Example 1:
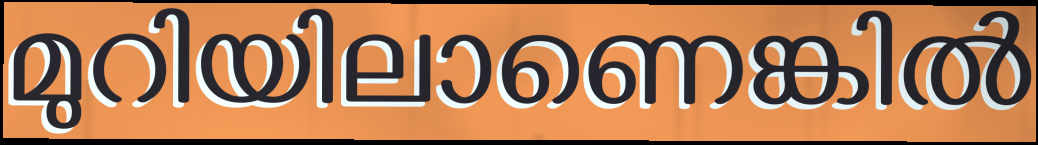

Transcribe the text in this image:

മുറിയിലാണെങ്കിൽ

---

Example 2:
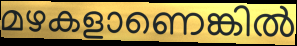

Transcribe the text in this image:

മഴകളാണെങ്കിൽ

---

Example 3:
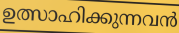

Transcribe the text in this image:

ഉത്സാഹിക്കുന്നവൻ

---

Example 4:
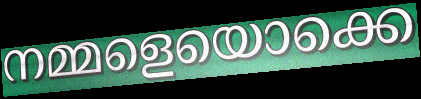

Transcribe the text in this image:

നമ്മളെയൊക്കെ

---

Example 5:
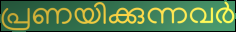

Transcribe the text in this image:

പ്രണയിക്കുന്നവർ